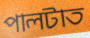
পালটাত